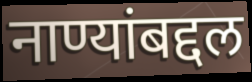
नाण्यांबद्दल